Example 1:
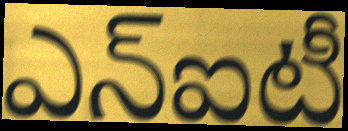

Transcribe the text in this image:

ఎన్ఐటీ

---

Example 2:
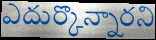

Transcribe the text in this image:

ఎదుర్కొన్నారని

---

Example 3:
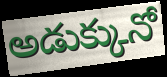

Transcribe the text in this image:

అడుక్కునో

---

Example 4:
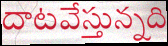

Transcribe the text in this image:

దాటవేస్తున్నది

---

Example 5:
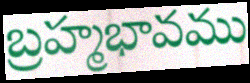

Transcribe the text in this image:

బ్రహ్మభావము